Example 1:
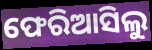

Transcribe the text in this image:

ଫେରିଆସିଲୁ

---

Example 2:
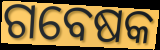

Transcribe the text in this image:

ଗବେଷକ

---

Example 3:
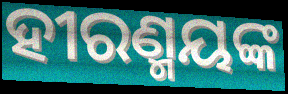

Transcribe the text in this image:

ହୀରଣ୍ମୟଙ୍କ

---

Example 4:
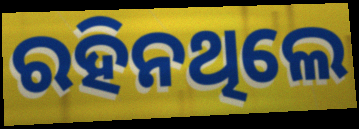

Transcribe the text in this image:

ରହିନଥିଲେ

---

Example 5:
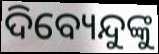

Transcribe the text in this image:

ଦିବ୍ୟେନ୍ଦୁଙ୍କୁ